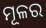
ମୂଳର